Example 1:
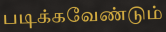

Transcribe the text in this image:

படிக்கவேண்டும்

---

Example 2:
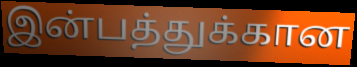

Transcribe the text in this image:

இன்பத்துக்கான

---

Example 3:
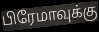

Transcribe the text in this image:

பிரேமாவுக்கு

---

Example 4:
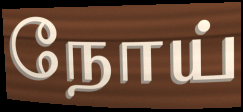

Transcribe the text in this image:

நோய்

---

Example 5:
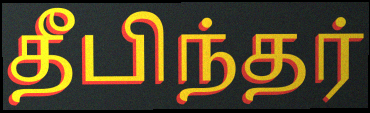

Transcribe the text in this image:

தீபிந்தர்